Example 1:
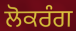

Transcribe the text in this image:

ਲੋਕਰੰਗ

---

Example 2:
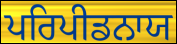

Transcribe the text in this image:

ਪਰਿਪੀਡਨਾਯ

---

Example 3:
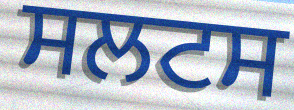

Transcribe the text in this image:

ਸਲਟਸ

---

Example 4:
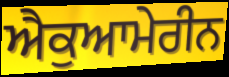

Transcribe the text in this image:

ਐਕੁਆਮੇਰੀਨ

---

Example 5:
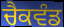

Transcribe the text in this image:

ਚੈਕਵੰਡ